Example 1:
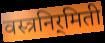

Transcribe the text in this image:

वस्त्रनिर्मिती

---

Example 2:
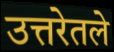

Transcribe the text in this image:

उत्तरेतले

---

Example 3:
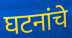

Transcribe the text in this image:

घटनांचे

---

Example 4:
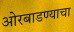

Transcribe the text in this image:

ओरबाडण्याचा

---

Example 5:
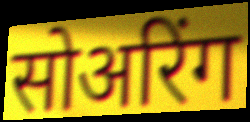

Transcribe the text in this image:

सोअरिंग